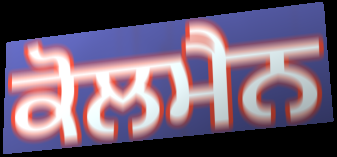
ਕੋਲਮੈਨ